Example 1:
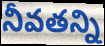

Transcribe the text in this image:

నీవతన్ని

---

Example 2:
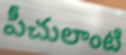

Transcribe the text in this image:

పీచులాంటి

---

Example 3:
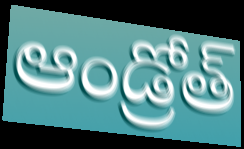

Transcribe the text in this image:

ఆండ్రోత్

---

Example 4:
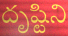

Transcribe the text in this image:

దృష్టిని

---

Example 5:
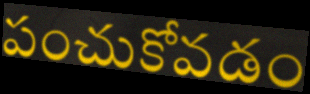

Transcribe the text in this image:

పంచుకోవడం